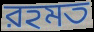
রহমত